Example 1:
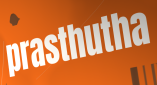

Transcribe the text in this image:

prasthutha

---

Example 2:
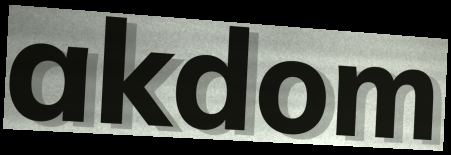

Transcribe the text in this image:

akdom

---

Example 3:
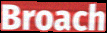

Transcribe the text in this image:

Broach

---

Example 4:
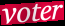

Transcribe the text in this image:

voter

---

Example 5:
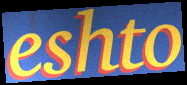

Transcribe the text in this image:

eshto